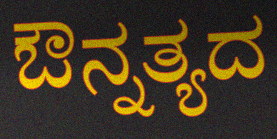
ಔನ್ನತ್ಯದ